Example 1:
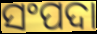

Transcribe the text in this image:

ସଂପଦା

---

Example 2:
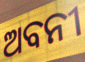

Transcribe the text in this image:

ଅବନୀ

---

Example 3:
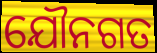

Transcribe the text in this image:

ଯୌନଗତ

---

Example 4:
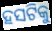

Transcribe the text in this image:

ହସଟିକୁ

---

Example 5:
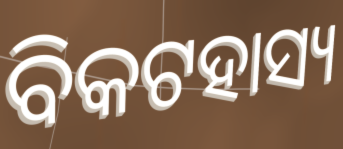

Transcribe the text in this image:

ବିକଟହାସ୍ୟ